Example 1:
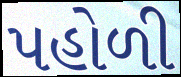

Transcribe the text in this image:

પહોળી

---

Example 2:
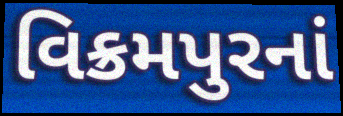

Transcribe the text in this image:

વિક્રમપુરનાં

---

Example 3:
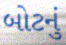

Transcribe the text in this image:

બોટનું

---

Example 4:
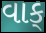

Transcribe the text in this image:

વાક્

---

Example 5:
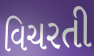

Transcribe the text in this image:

વિચરતી